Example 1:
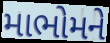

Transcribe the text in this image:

માભોમને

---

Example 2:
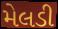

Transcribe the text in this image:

મેલડી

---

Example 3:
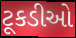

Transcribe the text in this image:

ટૂકડીઓ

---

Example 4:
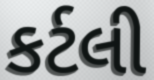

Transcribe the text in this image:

કર્ટલી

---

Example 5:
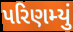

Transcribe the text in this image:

પરિણમ્યું